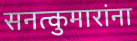
सनत्कुमारांना